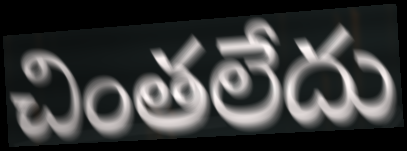
చింతలేదు